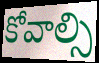
కోవాల్సి